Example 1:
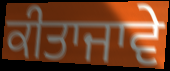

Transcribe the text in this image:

ਕੀਤਾਜਾਵੇ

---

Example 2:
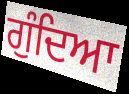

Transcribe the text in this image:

ਗੁੰਦਿਆ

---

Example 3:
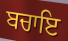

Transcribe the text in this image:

ਬਚਾਇ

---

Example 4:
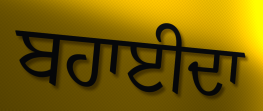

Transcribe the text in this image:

ਬਹਾਈਦਾ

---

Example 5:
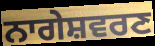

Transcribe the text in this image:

ਨਾਗੇਸ਼ਵਰਣ